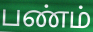
பண்ம்